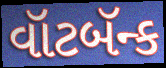
વૉટબૅન્ક